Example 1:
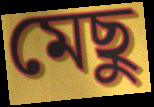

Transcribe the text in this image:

মেছু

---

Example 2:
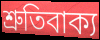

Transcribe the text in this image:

শ্রুতিবাক্য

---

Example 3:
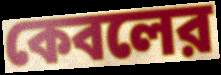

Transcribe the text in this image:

কেবলের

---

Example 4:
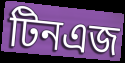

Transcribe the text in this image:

টিনএজ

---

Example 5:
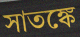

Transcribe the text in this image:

সাতঙ্কে